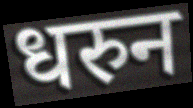
धरुन